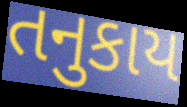
તનુકાય